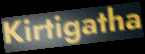
Kirtigatha